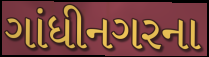
ગાંધીનગરના